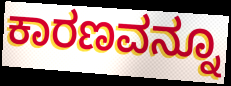
ಕಾರಣವನ್ನೂ